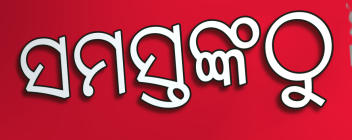
ସମସ୍ତଙ୍କଠୁ